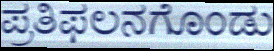
ಪ್ರತಿಫಲನಗೊಂಡು